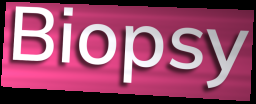
Biopsy